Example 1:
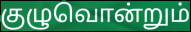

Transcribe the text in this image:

குழுவொன்றும்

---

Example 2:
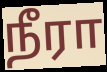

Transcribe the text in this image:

நீரா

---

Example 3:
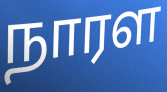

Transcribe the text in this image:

நாரள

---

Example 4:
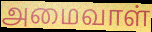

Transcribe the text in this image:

அமைவாள்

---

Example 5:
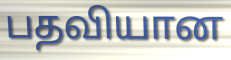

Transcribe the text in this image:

பதவியான